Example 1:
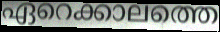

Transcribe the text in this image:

ഏറെക്കാലത്തെ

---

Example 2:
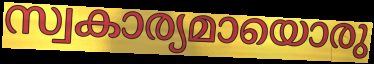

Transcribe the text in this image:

സ്വകാര്യമായൊരു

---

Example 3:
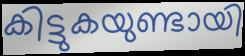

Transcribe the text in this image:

കിട്ടുകയുണ്ടായി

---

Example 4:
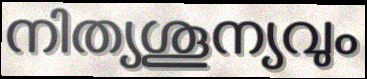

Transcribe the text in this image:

നിത്യശൂന്യവും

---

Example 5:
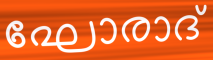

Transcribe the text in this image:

ഘോരാദ്